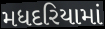
મધદરિયામાં